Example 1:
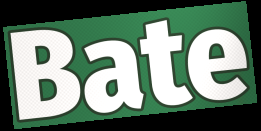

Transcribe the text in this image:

Bate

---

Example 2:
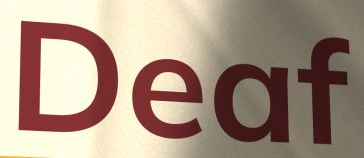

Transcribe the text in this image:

Deaf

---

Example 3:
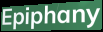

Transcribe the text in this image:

Epiphany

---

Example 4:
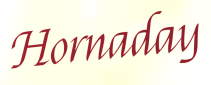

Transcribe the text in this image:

Hornaday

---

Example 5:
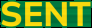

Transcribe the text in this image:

SENT